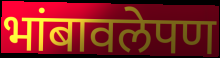
भांबावलेपण